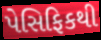
પેસિફિકથી